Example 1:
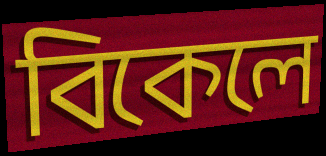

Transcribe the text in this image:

বিকেলে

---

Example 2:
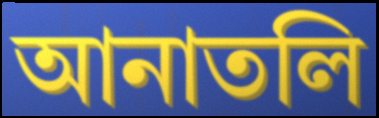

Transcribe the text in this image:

আনাতলি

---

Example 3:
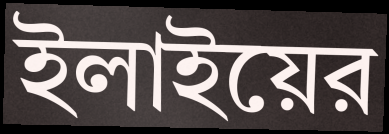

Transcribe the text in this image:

ইলাইয়ের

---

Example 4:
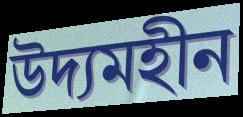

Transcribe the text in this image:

উদ্যমহীন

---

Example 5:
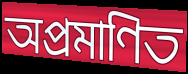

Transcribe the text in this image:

অপ্রমাণিত